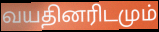
வயதினரிடமும்